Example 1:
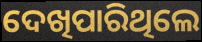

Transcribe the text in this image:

ଦେଖିପାରିଥିଲେ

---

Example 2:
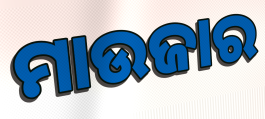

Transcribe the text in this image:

ମାଉଜାର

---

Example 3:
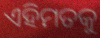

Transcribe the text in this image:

ଏହିମତକୁ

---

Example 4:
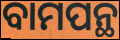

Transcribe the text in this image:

ବାମପନ୍ଥ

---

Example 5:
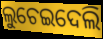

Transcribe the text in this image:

ଲୁଚେଇଦେଲି